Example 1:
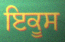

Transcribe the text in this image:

ਇਕੂਸ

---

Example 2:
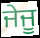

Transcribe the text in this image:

ਜੇਜੂ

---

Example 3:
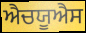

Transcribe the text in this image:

ਐਚਯੂਐਸ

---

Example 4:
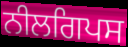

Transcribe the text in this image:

ਨੀਲਗਿਪਸ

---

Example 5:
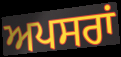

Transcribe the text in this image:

ਅਪਸਰਾਂ